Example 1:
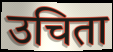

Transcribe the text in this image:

उचिता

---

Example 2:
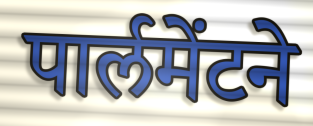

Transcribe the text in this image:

पार्लमेंटने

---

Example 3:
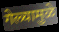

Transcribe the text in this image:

गेल्यामुळे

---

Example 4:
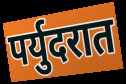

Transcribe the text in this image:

पर्युदरात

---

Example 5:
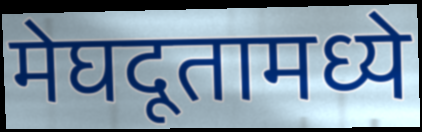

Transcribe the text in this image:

मेघदूतामध्ये